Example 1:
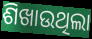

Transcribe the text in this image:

ଶିଖାଉଥିଲା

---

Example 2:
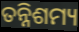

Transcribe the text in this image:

ତନ୍ନିଶମ୍ୟ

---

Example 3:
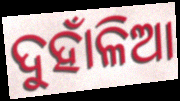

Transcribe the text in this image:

ଦୁହାଁଳିଆ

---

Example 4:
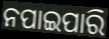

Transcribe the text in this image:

ନପାଇପାରି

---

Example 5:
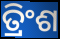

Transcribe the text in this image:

ତ୍ରିଂଶ